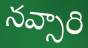
నవ్సారి